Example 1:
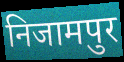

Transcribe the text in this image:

निजामपुर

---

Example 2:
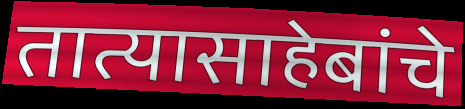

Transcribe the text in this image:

तात्यासाहेबांचे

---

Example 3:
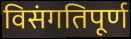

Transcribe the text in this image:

विसंगतिपूर्ण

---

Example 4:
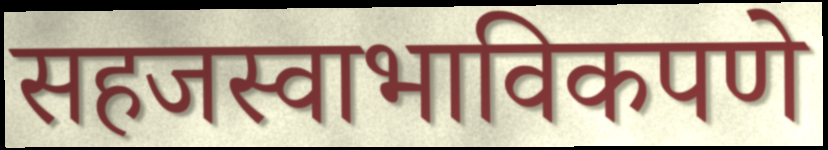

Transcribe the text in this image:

सहजस्वाभाविकपणे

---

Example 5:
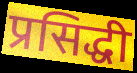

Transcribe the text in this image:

प्रसिद्धी